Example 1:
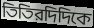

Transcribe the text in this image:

তিতিরদিদিকে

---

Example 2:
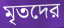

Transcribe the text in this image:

মৃতদের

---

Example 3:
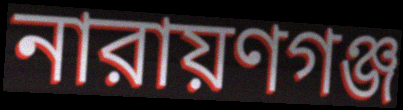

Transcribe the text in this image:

নারায়ণগঞ্জ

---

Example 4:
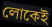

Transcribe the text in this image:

লোকেই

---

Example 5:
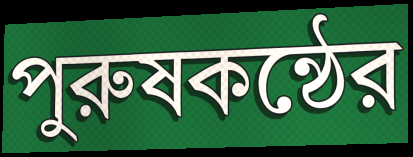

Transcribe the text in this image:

পুরুষকন্ঠের